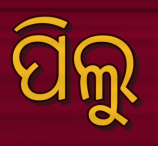
ପିଲୁ